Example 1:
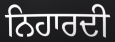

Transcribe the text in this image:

ਨਿਹਾਰਦੀ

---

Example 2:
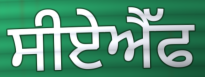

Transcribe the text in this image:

ਸੀਏਐੱਫ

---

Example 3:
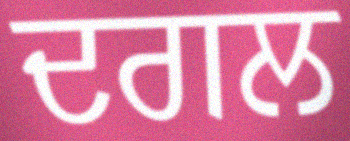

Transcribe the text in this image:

ਦਗਲ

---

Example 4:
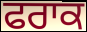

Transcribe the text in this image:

ਫਰਾਕ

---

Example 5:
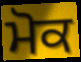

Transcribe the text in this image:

ਮੋਕ